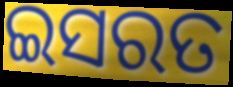
ଇସରତ